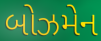
બોઝમેન